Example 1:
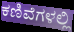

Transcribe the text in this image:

ಕಣಿವೆಗಳಲ್ಲಿ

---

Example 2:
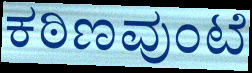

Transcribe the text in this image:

ಕಠಿಣವುಂಟೆ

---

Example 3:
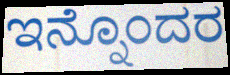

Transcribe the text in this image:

ಇನ್ನೊಂದರ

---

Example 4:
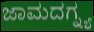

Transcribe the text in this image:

ಜಾಮದಗ್ನ್ಯ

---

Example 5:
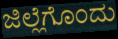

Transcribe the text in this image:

ಜಿಲ್ಲೆಗೊಂದು